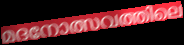
മദനോത്സവത്തിലെ